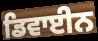
ਡਿਵਾਈਨ